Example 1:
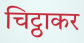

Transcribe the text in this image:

चिट्ठाकर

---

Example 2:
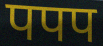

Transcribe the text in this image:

पपप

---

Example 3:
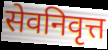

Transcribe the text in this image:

सेवनिवृत्त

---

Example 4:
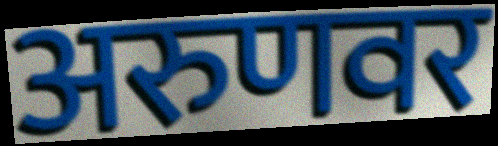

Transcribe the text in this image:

अरुणवर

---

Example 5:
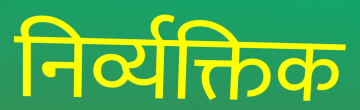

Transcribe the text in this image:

निर्व्यक्तिक